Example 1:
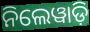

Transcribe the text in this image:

ନିଲେୱାଡ଼ି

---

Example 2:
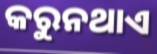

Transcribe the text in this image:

କରୁନଥାଏ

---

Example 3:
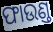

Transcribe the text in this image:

ଫାଉଣ୍ଡ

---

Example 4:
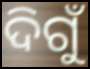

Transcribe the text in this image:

ଦିଗୁଁ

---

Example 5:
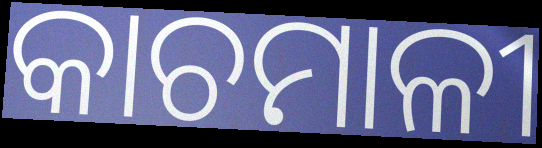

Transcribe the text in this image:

କାଚମାଳୀ